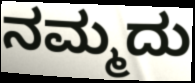
ನಮ್ಮದು